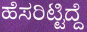
ಹೆಸರಿಟ್ಟಿದ್ದೆ